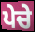
ਪੇਚੇ